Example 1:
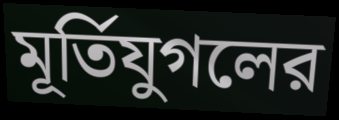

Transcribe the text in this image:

মূর্তিযুগলের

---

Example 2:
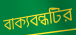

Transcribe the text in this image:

বাক্যবন্ধটির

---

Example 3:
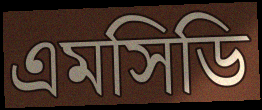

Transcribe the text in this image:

এমসিডি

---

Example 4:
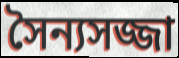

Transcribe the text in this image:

সৈন্যসজ্জা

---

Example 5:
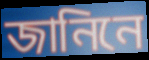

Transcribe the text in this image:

জানিনে